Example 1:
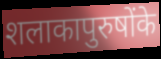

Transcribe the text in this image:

शलाकापुरुषोंके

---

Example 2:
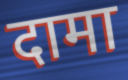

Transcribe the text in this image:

दामा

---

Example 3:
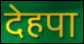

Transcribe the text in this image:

देहपा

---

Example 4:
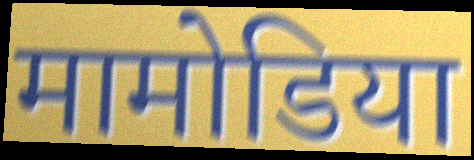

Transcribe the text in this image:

मामोडिया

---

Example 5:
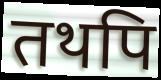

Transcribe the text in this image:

तथपि